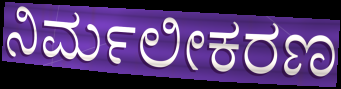
ನಿರ್ಮಲೀಕರಣ